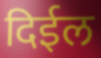
दिईल